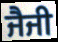
ਜੈਜੀ